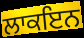
ਲਾਕਇਨ